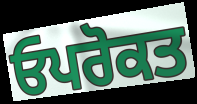
ਓਪਰੋਕਤ